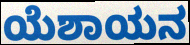
ಯೆಶಾಯನ